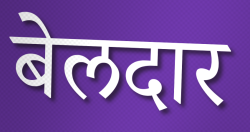
बेलदार